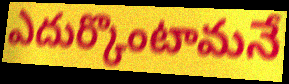
ఎదుర్కొంటామనే